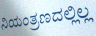
ನಿಯಂತ್ರಣದಲ್ಲಿಲ್ಲ